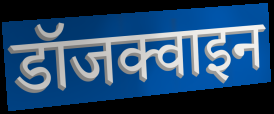
डॉजक्वाइन